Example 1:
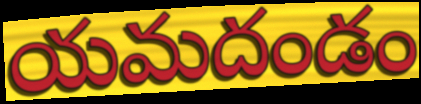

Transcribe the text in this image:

యమదండం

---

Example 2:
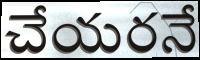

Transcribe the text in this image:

చేయరనే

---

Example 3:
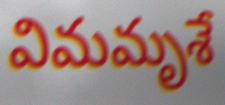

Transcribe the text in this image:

విమమృశే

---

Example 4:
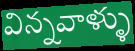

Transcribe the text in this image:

విన్నవాళ్ళు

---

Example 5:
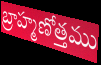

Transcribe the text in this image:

బ్రాహ్మణోత్తము